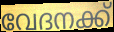
വേദനക്ക്